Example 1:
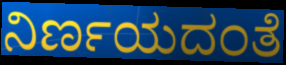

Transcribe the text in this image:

ನಿರ್ಣಯದಂತೆ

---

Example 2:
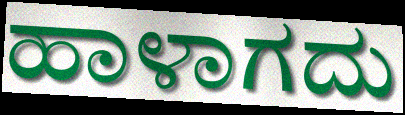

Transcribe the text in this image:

ಹಾಳಾಗದು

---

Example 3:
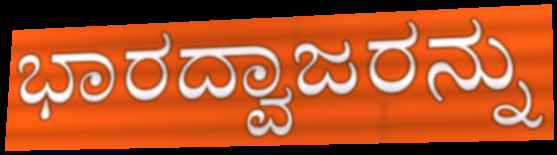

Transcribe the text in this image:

ಭಾರದ್ವಾಜರನ್ನು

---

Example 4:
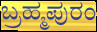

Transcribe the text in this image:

ಬ್ರಹ್ಮಪುರಂ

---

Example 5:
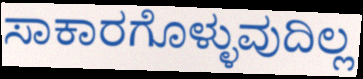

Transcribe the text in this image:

ಸಾಕಾರಗೊಳ್ಳುವುದಿಲ್ಲ